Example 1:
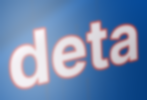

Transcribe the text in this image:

deta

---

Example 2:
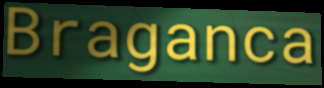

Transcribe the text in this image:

Braganca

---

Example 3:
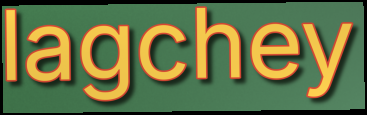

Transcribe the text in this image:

lagchey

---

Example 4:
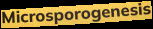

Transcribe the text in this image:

Microsporogenesis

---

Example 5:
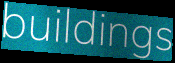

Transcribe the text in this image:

buildings